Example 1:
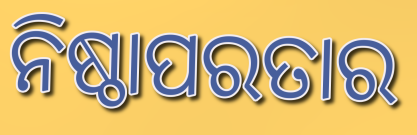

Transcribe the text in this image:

ନିଷ୍ଠାପରତାର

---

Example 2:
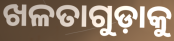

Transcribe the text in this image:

ଖଳତାଗୁଡ଼ାକୁ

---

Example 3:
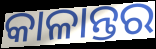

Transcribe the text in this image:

କାଳାନ୍ତର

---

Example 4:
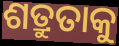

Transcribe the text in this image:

ଶତ୍ରୁତାକୁ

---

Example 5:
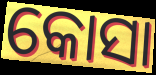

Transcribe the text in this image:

କୋସା